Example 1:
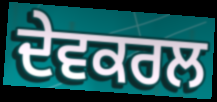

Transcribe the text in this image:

ਦੇਵਕਰਲ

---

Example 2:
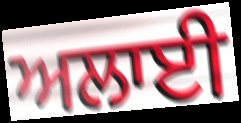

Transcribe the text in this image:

ਅਲਾਈ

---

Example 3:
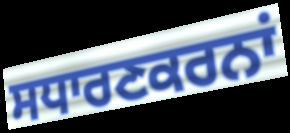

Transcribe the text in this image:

ਸਧਾਰਣਕਰਨਾਂ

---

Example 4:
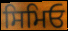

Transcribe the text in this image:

ਸਿਮਿਓ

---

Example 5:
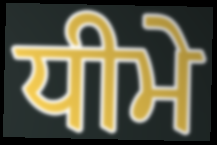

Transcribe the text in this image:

ਧੀਮੇ